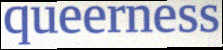
queerness